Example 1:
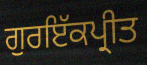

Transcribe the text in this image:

ਗੁਰਇੱਕਪ੍ਰੀਤ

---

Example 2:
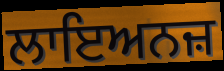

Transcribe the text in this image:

ਲਾਇਅਨਜ਼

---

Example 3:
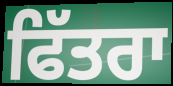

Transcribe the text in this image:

ਫਿੱਤਰਾ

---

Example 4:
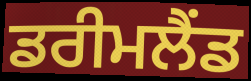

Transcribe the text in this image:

ਡਰੀਮਲੈਂਡ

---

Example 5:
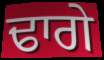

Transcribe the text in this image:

ਢਾਗੇ